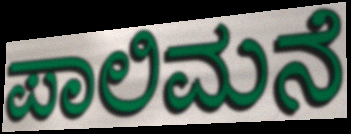
ಪಾಲಿಮನೆ